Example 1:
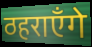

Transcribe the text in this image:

ठहराएँगे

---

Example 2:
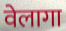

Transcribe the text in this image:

वेलागा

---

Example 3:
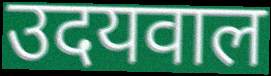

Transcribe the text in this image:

उदयवाल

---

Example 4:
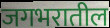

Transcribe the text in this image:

जगभरातील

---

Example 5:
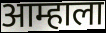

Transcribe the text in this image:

आम्हाला